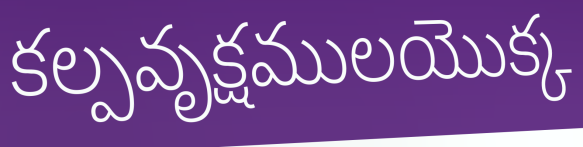
కల్పవృక్షములయొక్క